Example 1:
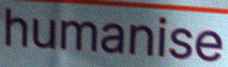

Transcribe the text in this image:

humanise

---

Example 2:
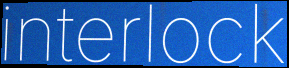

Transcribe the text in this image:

interlock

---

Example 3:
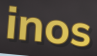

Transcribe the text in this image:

inos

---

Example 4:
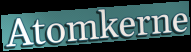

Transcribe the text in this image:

Atomkerne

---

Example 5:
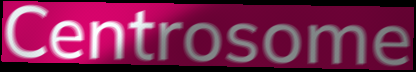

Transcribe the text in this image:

Centrosome